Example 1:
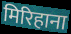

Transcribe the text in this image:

मिरिहाना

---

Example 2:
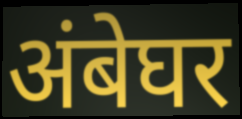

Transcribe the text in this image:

अंबेघर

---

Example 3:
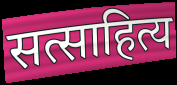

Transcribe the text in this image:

सत्साहित्य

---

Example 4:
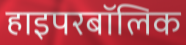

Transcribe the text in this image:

हाइपरबॉलिक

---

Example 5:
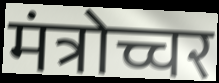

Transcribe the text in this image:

मंत्रोच्चर